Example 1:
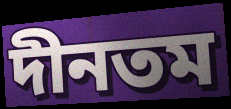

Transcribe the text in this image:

দীনতম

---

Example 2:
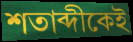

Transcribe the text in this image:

শতাব্দীকেই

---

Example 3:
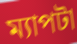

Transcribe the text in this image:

ম্যাপটা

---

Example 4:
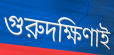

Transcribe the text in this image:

গুরুদক্ষিণাই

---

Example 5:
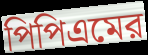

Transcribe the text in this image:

পিপিএমের